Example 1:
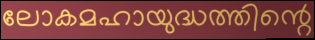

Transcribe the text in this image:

ലോകമഹായുദ്ധത്തിന്റെ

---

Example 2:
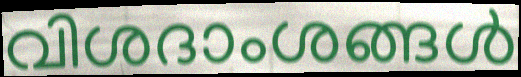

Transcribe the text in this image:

വിശദാംശങ്ങൾ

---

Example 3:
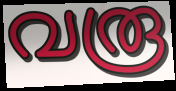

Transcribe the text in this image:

വരൂ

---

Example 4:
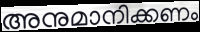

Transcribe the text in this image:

അനുമാനിക്കണം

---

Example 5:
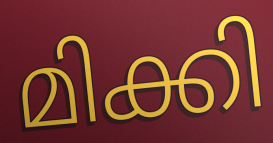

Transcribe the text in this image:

മിക്കി